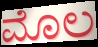
ಮೊಲ